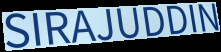
SIRAJUDDIN